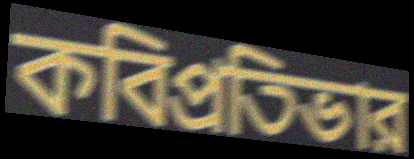
কবিপ্রতিভার